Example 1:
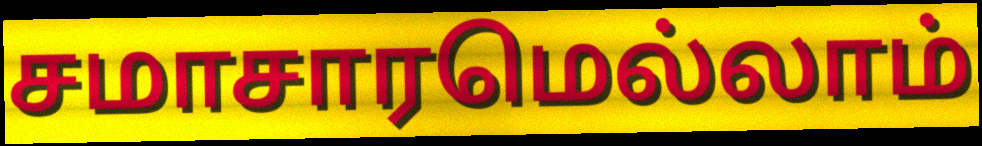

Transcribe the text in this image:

சமாசாரமெல்லாம்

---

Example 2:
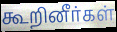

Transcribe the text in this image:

கூறினீர்கள்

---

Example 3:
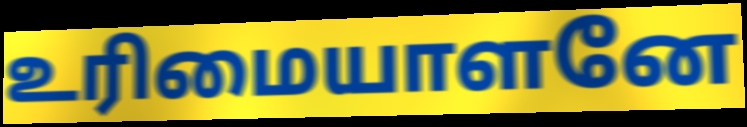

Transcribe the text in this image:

உரிமையாளனே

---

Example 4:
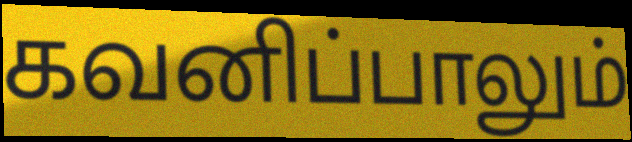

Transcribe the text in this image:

கவனிப்பாலும்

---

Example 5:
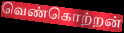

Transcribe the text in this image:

வெண்கொற்றன்